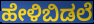
ಹೇಳಿಬಿಡಲೆ